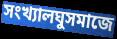
সংখ্যালঘুসমাজে